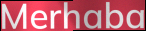
Merhaba